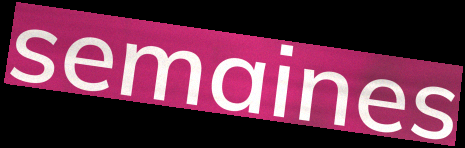
semaines